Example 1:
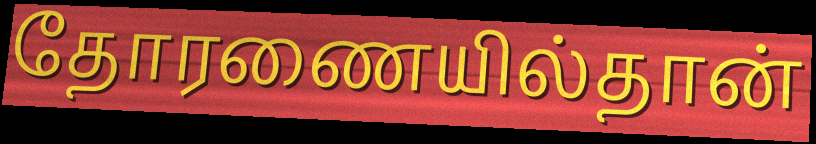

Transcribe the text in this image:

தோரணையில்தான்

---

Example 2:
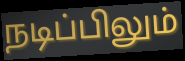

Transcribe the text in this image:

நடிப்பிலும்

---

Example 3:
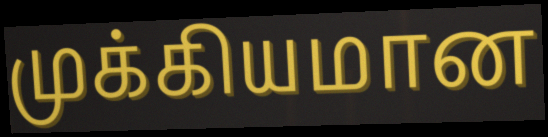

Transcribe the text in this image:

முக்கியமான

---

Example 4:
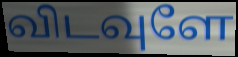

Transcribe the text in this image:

விடவுளே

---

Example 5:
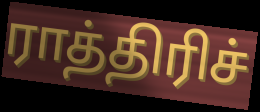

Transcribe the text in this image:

ராத்திரிச்